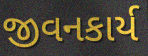
જીવનકાર્ય